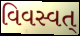
વિવસ્વત્